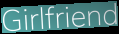
Girlfriend